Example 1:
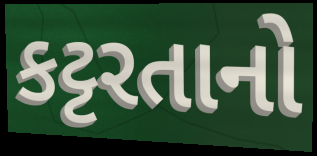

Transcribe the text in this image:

કટ્ટરતાનો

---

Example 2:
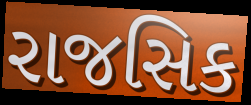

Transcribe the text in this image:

રાજસિક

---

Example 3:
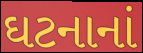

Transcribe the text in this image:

ઘટનાનાં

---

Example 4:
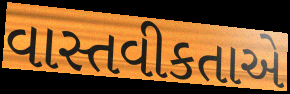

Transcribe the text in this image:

વાસ્તવીકતાએ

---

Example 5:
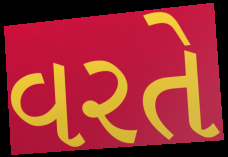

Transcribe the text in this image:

વરતે